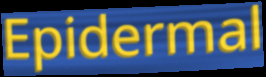
Epidermal